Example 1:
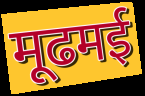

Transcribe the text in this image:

मूढमई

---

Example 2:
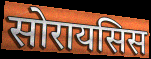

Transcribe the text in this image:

सोरायसिस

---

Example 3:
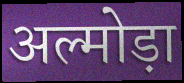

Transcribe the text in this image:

अल्मोड़ा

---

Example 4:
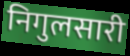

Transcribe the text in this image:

निगुलसारी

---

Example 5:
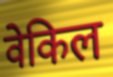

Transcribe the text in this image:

वेकिल